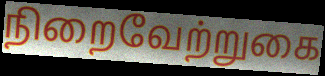
நிறைவேற்றுகை